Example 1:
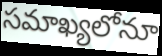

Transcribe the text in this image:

సమాఖ్యలోనూ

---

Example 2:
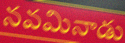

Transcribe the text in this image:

నవమినాడు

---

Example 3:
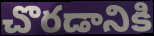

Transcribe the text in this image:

చొరడానికి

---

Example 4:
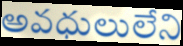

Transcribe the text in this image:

అవధులులేని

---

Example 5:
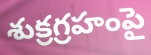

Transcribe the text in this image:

శుక్రగ్రహంపై